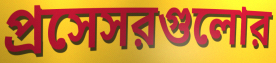
প্রসেসরগুলোর